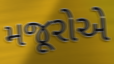
મજૂરોએ